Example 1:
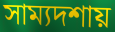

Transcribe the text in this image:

সাম্যদশায়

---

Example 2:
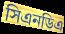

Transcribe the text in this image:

সিএনডিএ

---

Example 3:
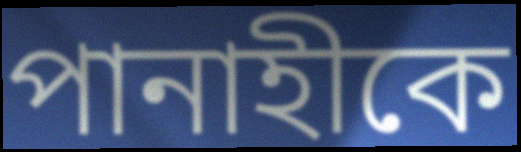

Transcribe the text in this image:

পানাহীকে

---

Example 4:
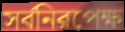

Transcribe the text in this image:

সর্বনিরপেক্ষ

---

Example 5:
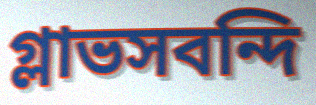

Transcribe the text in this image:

গ্লাভসবন্দি